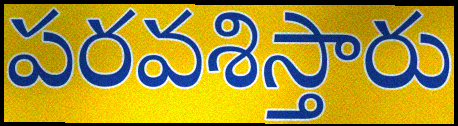
పరవశిస్తారు